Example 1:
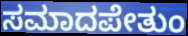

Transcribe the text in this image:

ಸಮಾದಪೇತುಂ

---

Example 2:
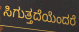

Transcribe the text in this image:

ಸಿಗುತ್ತದೆಯೆಂದರೆ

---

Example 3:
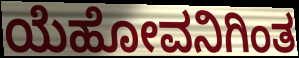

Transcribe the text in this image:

ಯೆಹೋವನಿಗಿಂತ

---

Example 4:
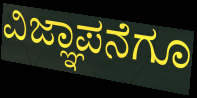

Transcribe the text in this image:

ವಿಜ್ಞಾಪನೆಗೂ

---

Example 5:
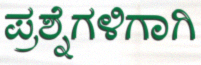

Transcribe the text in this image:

ಪ್ರಶ್ನೆಗಳಿಗಾಗಿ